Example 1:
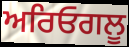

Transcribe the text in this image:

ਅਰਿਓਗਲੂ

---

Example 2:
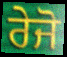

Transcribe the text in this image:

ਰੇਜੋ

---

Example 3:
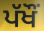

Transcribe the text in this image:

ਪੱਖੌਂ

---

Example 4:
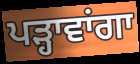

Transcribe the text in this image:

ਪੜ੍ਹਾਵਾਂਗਾ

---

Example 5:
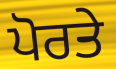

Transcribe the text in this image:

ਪੋਰਤੇ